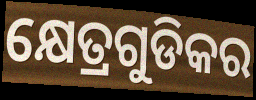
କ୍ଷେତ୍ରଗୁଡିକର